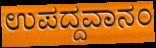
ಉಪದ್ದವಾನಂ